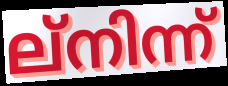
ല്നിന്ന്